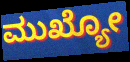
ಮುಖ್ಯೋ